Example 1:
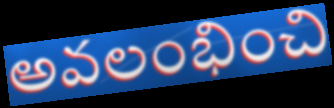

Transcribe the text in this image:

అవలంభించి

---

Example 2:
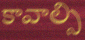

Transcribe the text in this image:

కావాల్సి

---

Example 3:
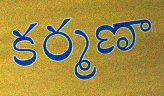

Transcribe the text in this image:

కర్మణా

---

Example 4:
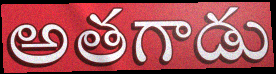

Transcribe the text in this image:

అతగాడు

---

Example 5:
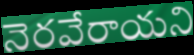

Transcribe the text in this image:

నెరవేరాయని